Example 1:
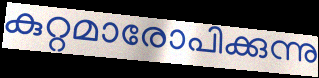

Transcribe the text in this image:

കുറ്റമാരോപിക്കുന്നു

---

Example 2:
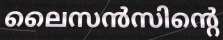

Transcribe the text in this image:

ലൈസൻസിന്റെ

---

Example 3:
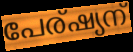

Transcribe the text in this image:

പേര്ഷ്യന്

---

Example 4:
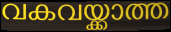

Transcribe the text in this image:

വകവയ്ക്കാത്ത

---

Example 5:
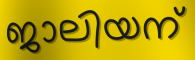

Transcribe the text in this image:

ജാലിയന്